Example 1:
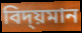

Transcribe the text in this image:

বিদ্য়মান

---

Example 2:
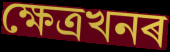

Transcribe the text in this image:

ক্ষেত্ৰখনৰ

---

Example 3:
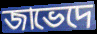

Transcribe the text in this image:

জাভেদে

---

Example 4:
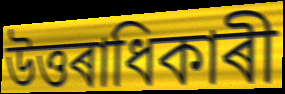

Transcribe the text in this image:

উত্তৰাধিকাৰী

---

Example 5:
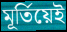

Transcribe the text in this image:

মূৰ্তিয়েই